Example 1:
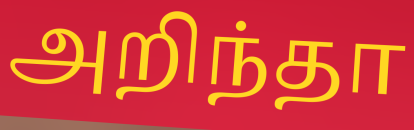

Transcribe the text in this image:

அறிந்தா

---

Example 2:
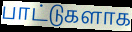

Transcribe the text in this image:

பாட்டுகளாக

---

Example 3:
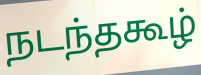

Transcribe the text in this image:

நடந்தகூழ்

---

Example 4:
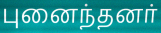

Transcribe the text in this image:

புனைந்தனர்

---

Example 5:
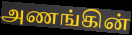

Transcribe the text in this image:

அணங்கின்